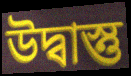
উদ্বাস্তু